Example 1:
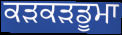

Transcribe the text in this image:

ਕੜਕੜਡੂਮਾ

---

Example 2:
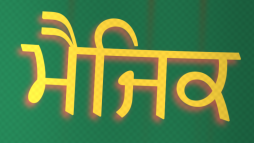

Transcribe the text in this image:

ਮੈਜਿਕ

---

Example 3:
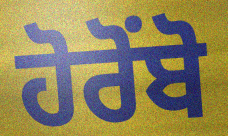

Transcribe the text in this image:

ਹੋਰੋਂਬੋ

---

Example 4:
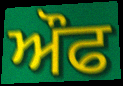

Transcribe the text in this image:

ਔਫ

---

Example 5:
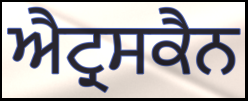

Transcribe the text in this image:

ਐਟ੍ਰਸਕੈਨ